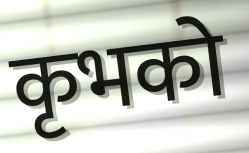
कृभको